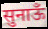
सुनाऊँ